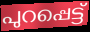
പുറപ്പെട്ട്